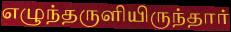
எழுந்தருளியிருந்தார்